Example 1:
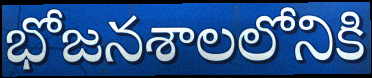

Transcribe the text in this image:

భోజనశాలలోనికి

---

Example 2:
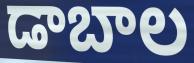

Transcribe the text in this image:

డాబాల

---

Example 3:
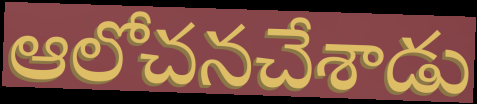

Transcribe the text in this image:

ఆలోచనచేశాడు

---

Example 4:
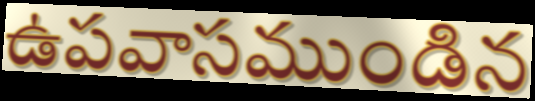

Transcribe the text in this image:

ఉపవాసముండిన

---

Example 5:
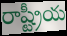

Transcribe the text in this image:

రాష్ట్రీయ